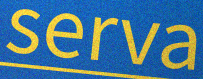
serva